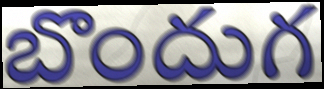
బొందుగ